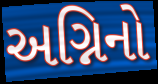
અગ્નિનો